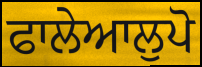
ਫਾਲੇਆਲੁਪੋ